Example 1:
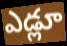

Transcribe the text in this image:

ఎడ్లూ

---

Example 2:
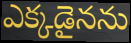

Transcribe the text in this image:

ఎక్కడైనను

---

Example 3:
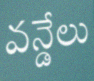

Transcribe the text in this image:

వన్డేలు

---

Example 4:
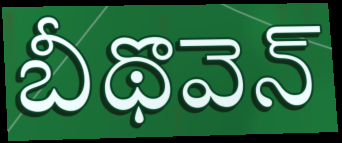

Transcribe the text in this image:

బీథొవెన్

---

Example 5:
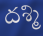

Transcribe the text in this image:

దశ్మి